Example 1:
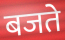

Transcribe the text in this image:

बजते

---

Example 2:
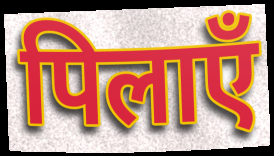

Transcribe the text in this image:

पिलाएँ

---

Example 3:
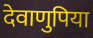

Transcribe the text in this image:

देवाणुपिया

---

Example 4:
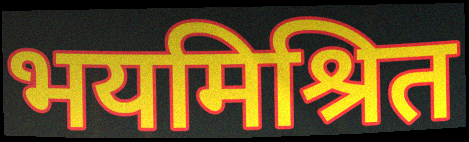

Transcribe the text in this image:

भयमिश्रित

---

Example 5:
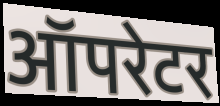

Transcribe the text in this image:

ऑपरेटर